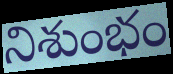
నిశుంభం